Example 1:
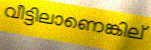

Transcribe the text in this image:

വീട്ടിലാണെങ്കില്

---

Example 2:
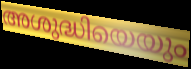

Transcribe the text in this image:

അശുദ്ധിയെയും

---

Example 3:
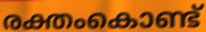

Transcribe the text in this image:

രക്തംകൊണ്ട്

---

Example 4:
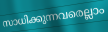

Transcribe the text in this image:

സാധിക്കുന്നവരെല്ലാം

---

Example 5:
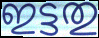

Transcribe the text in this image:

ഇട്ടതു